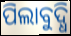
ପିଲାବୁଦ୍ଧି